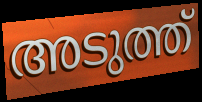
അടുത്ത്